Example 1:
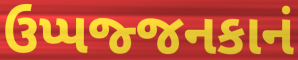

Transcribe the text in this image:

ઉપ્પજ્જનકાનં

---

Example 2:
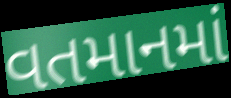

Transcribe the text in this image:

વતમાનમાં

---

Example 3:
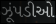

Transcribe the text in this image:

ઝૂંપડીઓ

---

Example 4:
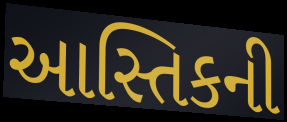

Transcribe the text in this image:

આસ્તિકની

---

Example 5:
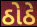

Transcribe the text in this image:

ઠોઠે